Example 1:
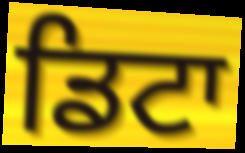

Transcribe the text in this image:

ਡਿਟਾ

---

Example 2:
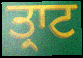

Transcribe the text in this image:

ਤ੍ਰਾਟ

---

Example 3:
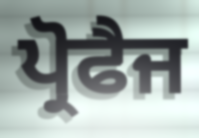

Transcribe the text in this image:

ਪ੍ਰੋਫੈਜ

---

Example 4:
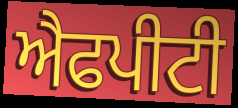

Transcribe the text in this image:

ਐਫਪੀਟੀ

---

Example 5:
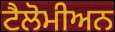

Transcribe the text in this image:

ਟੈਲੋਮੀਅਨ